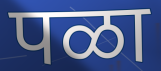
पळा